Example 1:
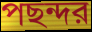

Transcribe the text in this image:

পছন্দর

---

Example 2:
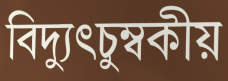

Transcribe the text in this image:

বিদ্যুৎচুম্বকীয়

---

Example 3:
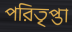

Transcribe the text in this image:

পরিতৃপ্তা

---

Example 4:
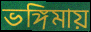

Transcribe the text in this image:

ভঙ্গিমায়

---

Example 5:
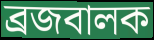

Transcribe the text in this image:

ব্রজবালক